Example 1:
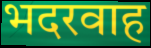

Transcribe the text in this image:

भदरवाह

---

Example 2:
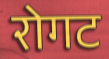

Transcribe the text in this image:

रोगट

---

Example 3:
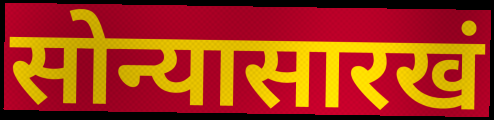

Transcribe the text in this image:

सोन्यासारखं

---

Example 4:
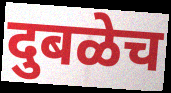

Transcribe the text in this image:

दुबळेच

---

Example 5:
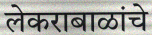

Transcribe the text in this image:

लेकराबाळांचे